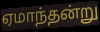
ஏமாந்தன்று